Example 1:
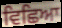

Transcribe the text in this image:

ਵਿਛਿਆ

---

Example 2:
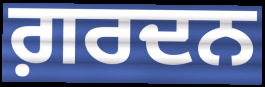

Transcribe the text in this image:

ਗ਼ਰਦਨ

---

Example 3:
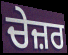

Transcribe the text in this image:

ਚੇਜ਼ਰ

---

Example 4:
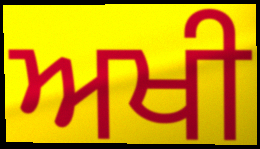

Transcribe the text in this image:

ਅਖੀ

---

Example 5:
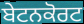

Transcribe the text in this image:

ਬੇਟਨਕੋਰਟ